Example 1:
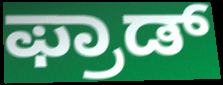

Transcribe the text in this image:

ಫ್ರಾಡ್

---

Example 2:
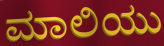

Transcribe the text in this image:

ಮಾಲಿಯು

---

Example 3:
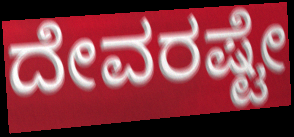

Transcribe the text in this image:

ದೇವರಷ್ಟೇ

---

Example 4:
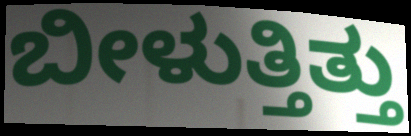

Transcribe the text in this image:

ಬೀಳುತ್ತಿತ್ತು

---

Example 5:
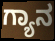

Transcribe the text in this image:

ಗ್ಯಾನ